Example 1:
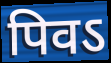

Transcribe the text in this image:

पिवऽ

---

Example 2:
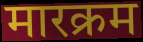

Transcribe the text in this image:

मारक्रम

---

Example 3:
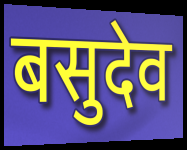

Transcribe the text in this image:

बसुदेव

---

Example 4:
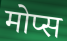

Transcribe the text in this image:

मोप्स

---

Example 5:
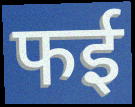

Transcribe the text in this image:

फई